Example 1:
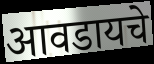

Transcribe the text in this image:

आवडायचे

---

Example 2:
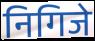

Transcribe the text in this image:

निगिजे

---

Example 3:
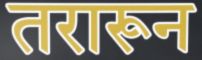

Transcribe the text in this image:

तरारून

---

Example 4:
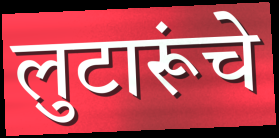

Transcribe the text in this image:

लुटारूंचे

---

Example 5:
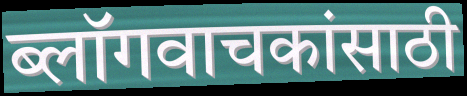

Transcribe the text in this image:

ब्लॉगवाचकांसाठी